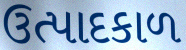
ઉત્પાદકાળ